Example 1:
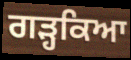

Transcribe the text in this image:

ਗੜ੍ਹਕਿਆ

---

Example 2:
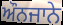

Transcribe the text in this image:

ਔਨਜਾਨੇ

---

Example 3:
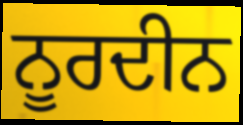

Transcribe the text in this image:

ਨੂਰਦੀਨ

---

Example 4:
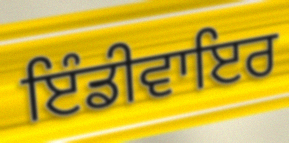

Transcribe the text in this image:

ਇੰਡੀਵਾਇਰ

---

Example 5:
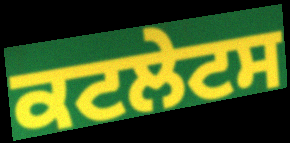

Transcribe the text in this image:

ਕਟਲੇਟਸ